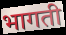
भागती